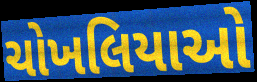
ચોખલિયાઓ